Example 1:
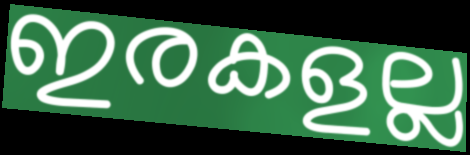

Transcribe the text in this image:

ഇരകളല്ല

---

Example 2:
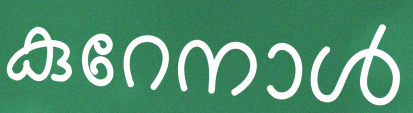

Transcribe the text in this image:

കുറേനാൾ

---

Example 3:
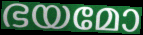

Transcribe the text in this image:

ഭയമോ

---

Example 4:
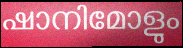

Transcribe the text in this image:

ഷാനിമോളും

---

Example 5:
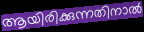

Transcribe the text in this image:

ആയിരിക്കുന്നതിനാൽ